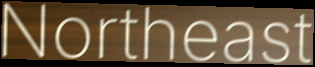
Northeast